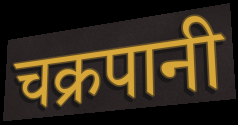
चक्रपानी